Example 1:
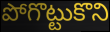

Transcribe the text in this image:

పోగొట్టుకొని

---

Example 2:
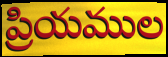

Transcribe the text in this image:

ప్రియముల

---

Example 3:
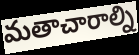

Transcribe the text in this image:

మతాచారాల్ని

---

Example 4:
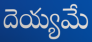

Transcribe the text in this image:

దెయ్యమే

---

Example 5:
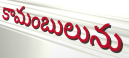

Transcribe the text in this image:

కామంబులును